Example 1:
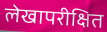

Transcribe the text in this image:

लेखापरीक्षित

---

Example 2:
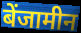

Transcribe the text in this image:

बेंजामीन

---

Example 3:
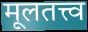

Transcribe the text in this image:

मूलतत्त्व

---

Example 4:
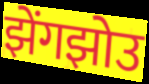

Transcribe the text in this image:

झेंगझोउ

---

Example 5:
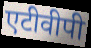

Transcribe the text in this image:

एटीवीपी